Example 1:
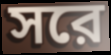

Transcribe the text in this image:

সরে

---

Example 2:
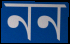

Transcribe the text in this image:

নন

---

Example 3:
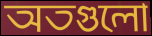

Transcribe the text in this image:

অতগুলো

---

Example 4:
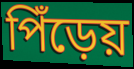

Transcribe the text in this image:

পিঁড়েয়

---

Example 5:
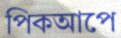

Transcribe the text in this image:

পিকআপে